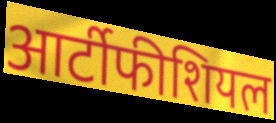
आर्टीफीशियल